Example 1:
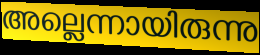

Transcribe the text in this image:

അല്ലെന്നായിരുന്നു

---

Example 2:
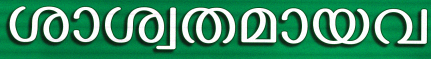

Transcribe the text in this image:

ശാശ്വതമായവ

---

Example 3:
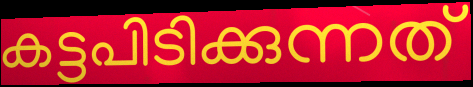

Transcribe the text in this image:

കട്ടപിടിക്കുന്നത്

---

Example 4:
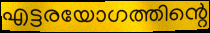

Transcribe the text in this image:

എട്ടരയോഗത്തിന്റെ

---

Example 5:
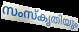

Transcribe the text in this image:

സംസ്കൃതിയും